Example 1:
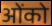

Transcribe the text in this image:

ओंको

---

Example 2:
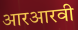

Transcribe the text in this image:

आरआरवी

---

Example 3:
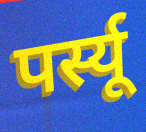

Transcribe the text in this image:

पर्स्यू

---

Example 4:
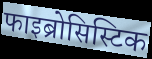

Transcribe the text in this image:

फाइब्रोसिस्टिक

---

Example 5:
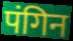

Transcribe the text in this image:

पंगिन